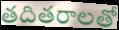
తదితరాలతో